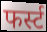
फर्स्ट